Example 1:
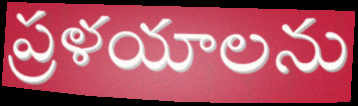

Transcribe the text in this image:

ప్రళయాలను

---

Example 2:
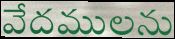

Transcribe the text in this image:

వేదములను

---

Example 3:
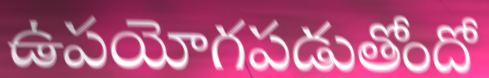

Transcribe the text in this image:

ఉపయోగపడుతోందో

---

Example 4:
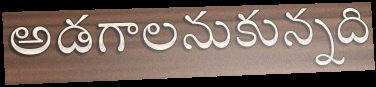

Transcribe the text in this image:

అడగాలనుకున్నది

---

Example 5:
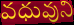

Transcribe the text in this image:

వధువుని